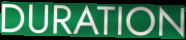
DURATION